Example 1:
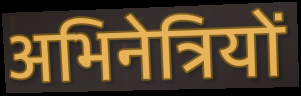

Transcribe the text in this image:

अभिनेत्रियों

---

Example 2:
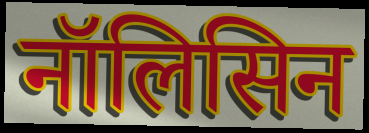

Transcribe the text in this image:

नॉलिसिन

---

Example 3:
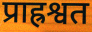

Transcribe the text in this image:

प्राह्रश्वत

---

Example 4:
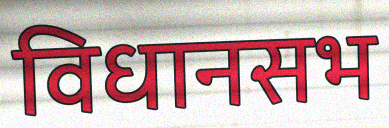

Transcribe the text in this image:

विधानसभ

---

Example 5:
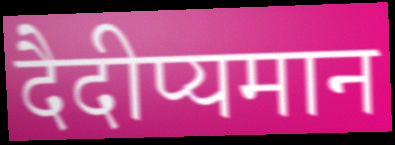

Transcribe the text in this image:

दैदीप्यमान